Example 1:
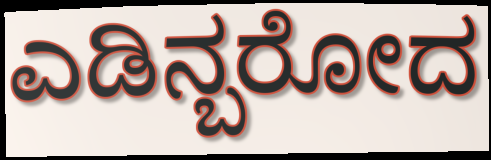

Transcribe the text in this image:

ಎಡಿನ್ಬರೋದ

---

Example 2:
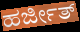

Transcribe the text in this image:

ಹರ್ಜೀತ್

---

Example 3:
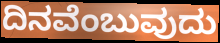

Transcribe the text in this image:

ದಿನವೆಂಬುವುದು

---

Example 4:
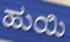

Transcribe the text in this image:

ಹುಯಿ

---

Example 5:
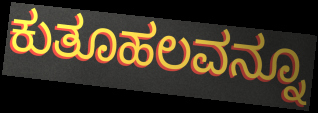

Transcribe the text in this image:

ಕುತೂಹಲವನ್ನೂ